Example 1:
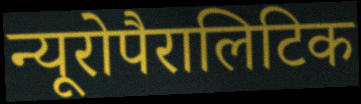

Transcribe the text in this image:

न्यूरोपैरालिटिक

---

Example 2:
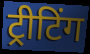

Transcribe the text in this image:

ट्रीटिंग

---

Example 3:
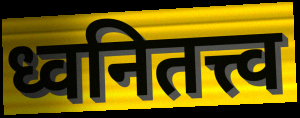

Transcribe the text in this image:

ध्वनितत्त्व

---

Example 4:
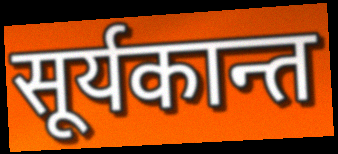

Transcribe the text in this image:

सूर्यकान्त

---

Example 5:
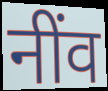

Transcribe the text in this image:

नींव